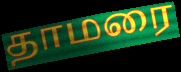
தாமரை